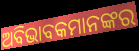
ଅବିଭାବକମାନଙ୍କର